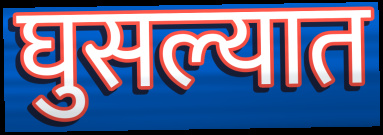
घुसल्यात